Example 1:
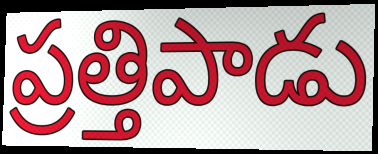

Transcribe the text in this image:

ప్రత్తిపాడు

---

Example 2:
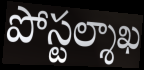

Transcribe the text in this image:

పోస్టల్శాఖ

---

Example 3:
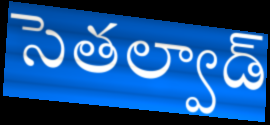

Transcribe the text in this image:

సెతల్వాడ్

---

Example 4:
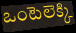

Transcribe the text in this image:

ఒంటెలెక్కి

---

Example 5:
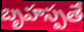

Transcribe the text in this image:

బృహస్పతే